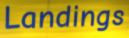
Landings